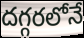
దగ్గరలోనే